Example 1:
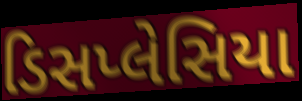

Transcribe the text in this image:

ડિસપ્લેસિયા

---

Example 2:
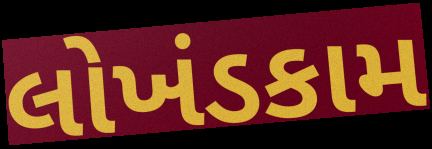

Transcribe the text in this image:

લોખંડકામ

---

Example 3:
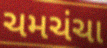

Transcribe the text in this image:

ચમચંચા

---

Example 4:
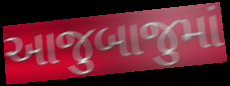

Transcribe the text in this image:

આજુબાજુમાં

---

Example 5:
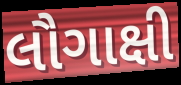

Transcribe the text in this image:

લૌગાક્ષી